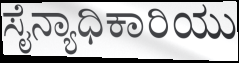
ಸೈನ್ಯಾಧಿಕಾರಿಯು